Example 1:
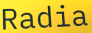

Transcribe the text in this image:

Radia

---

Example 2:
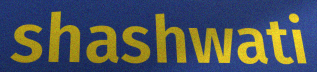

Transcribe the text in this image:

shashwati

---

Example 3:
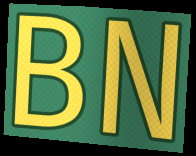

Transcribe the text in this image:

BN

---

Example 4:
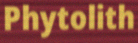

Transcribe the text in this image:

Phytolith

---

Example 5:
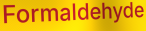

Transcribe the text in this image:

Formaldehyde